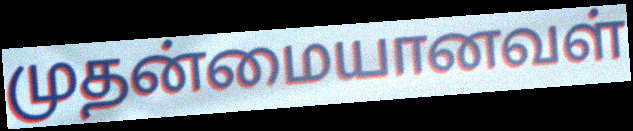
முதன்மையானவள்